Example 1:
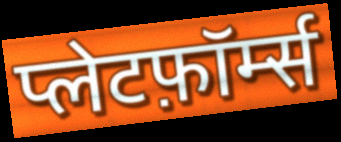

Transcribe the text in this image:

प्लेटफ़ॉर्म्स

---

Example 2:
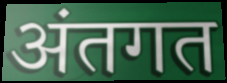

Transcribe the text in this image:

अंतगत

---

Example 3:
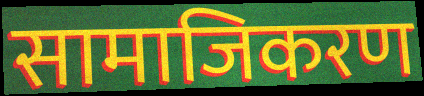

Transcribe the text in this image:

सामाजिकरण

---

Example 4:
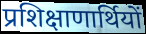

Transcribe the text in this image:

प्रशिक्षाणार्थियों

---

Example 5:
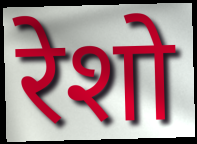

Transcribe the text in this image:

रेशो